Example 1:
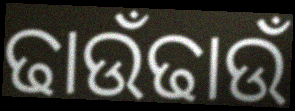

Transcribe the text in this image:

ଢାଉଁଢାଉଁ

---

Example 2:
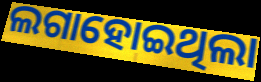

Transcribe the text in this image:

ଲଗାହୋଇଥିଲା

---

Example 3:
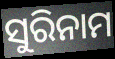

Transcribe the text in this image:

ସୁରିନାମ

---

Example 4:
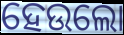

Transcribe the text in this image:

ହେଉଲୋ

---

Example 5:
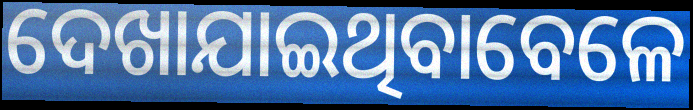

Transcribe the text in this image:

ଦେଖାଯାଇଥିବାବେଳେ